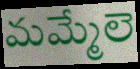
మమ్మేలె